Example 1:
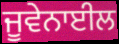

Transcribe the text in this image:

ਜੂਵੇਨਾਈਲ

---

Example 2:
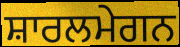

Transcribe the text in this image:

ਸ਼ਾਰਲਮੇਗਨ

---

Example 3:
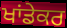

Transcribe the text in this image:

ਖਾਂਡੇਕਰ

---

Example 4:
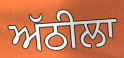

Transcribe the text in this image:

ਅੱਠੀਲਾ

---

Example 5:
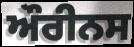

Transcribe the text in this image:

ਔਰੀਨਸ